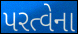
પરત્વેના